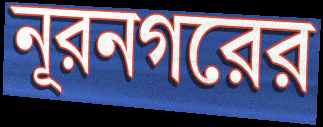
নূরনগরের